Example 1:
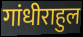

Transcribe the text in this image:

गांधीराहुल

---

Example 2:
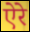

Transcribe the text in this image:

ऐरे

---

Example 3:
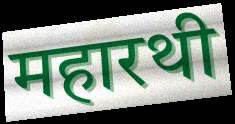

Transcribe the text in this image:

महारथी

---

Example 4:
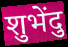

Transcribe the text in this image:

शुभेंदु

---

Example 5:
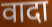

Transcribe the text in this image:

वादा